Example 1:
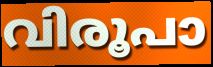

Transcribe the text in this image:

വിരൂപാ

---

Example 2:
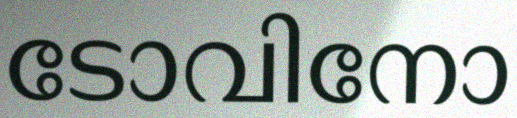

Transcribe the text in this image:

ടോവിനോ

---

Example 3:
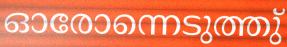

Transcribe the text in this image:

ഓരോന്നെടുത്തു്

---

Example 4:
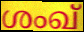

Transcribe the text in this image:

ശംഖ്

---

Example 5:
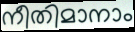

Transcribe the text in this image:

നീതിമാനാം